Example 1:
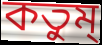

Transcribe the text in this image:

কতুম্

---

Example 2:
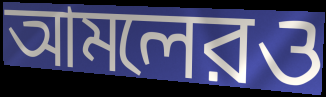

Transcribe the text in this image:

আমলেরও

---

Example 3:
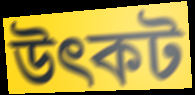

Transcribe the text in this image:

উৎকট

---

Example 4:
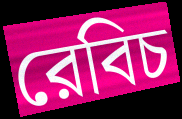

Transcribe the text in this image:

রেবিচ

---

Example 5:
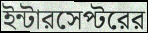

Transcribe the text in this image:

ইন্টারসেপ্টরের